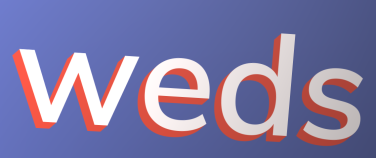
weds